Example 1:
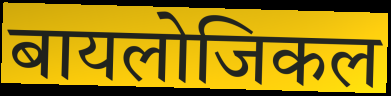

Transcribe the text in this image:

बायलोजिकल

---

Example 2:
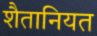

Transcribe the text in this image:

शैतानियत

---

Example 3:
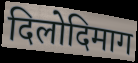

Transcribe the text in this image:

दिलोदिमाग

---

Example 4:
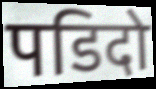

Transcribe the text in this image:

पडिदो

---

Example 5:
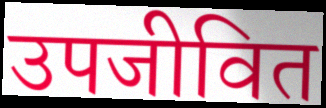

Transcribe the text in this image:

उपजीवित